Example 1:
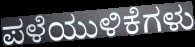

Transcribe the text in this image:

ಪಳೆಯುಳಿಕೆಗಳು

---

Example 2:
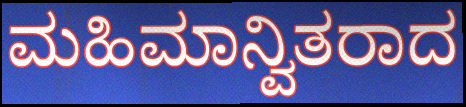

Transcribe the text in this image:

ಮಹಿಮಾನ್ವಿತರಾದ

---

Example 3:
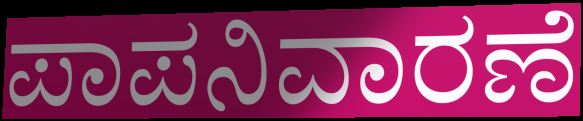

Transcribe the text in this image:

ಪಾಪನಿವಾರಣೆ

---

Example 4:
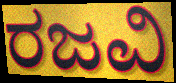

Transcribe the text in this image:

ರಜವಿ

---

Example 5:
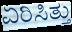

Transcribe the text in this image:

ಏರಿಸಿತ್ತು